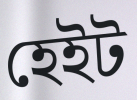
হেইট